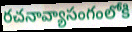
రచనావ్యాసంగంలోకి